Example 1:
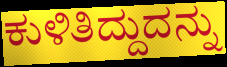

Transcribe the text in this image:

ಕುಳಿತಿದ್ದುದನ್ನು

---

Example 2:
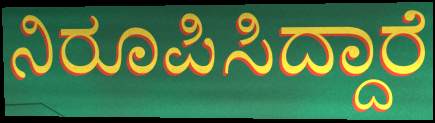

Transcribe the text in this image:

ನಿರೂಪಿಸಿದ್ದಾರೆ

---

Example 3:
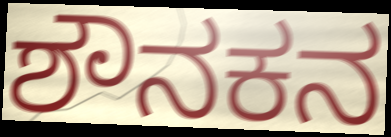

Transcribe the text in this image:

ಶೌನಕನ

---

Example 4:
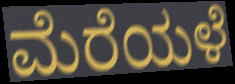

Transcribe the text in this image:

ಮೆರೆಯಳೆ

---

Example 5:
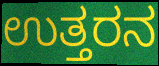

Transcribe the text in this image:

ಉತ್ತರನ